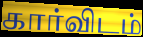
கார்விடம்